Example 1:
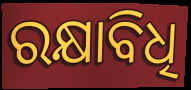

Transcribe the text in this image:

ରକ୍ଷାବିଧି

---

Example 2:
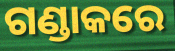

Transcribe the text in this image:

ଗଣ୍ଡାକରେ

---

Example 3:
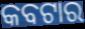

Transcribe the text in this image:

କବଟାର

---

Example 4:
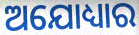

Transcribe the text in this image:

ଅଯୋଧ୍ୟାର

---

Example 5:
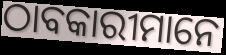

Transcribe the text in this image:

ଠାବକାରୀମାନେ